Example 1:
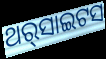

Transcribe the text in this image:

ଥର୍‌ସାଇଟସ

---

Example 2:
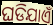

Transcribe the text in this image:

ଘଡିଯାଏଁ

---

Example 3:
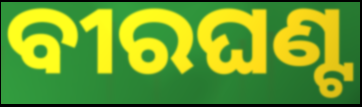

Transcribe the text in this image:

ବୀରଘଣ୍ଟ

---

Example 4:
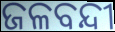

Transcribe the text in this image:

ଜଳବନ୍ଦୀ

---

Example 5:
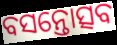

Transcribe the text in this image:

ବସନ୍ତୋତ୍ସବ